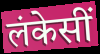
लंकेसीं